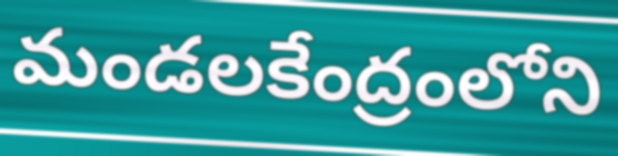
మండలకేంద్రంలోని